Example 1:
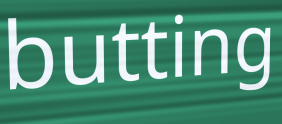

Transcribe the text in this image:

butting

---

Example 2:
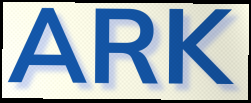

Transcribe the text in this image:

ARK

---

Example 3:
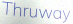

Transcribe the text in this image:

Thruway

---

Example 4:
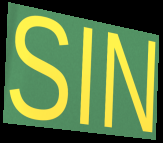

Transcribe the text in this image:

SIN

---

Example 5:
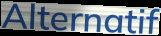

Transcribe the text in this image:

Alternatif